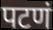
पटणं